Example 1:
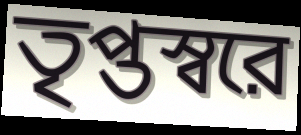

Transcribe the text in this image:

তৃপ্তস্বরে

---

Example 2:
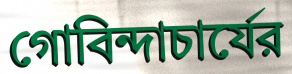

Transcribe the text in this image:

গোবিন্দাচার্যের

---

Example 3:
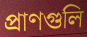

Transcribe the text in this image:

প্রাণগুলি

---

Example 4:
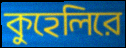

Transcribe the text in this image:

কুহেলিরে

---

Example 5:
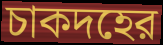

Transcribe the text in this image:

চাকদহের